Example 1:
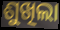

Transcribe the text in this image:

ଶୁଖିଲା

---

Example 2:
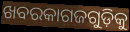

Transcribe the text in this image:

ଖବରକାଗଜଗୁଡ଼ିକୁ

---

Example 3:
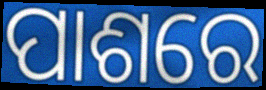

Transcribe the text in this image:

ପାଶରେ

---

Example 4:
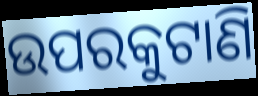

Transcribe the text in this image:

ଉପରକୁଟାଣି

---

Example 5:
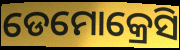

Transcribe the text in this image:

ଡେମୋକ୍ରେସି